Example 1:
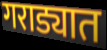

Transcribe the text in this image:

गराड्यात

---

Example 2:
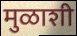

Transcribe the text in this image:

मुळाशी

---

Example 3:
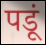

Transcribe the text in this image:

पडूं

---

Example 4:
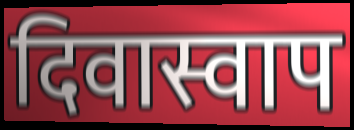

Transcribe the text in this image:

दिवास्वाप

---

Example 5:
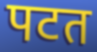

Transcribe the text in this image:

पटत